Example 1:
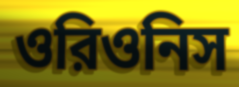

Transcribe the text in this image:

ওরিওনিস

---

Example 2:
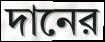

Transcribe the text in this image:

দানের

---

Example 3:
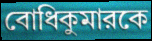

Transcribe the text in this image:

বোধিকুমারকে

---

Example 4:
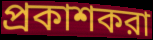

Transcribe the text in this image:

প্রকাশকরা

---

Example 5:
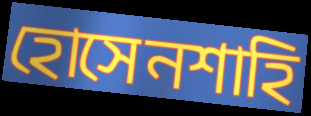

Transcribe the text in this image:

হোসেনশাহি